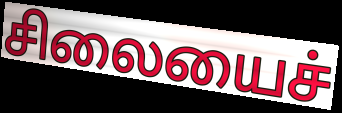
சிலையைச்